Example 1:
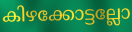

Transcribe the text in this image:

കിഴക്കോട്ടല്ലോ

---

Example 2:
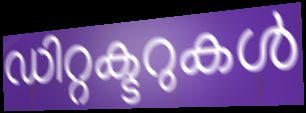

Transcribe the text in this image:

ഡിറ്റക്ടറുകൾ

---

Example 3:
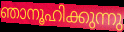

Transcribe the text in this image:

ഞാനൂഹിക്കുന്നു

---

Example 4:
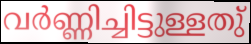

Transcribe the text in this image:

വർണ്ണിച്ചിട്ടുള്ളതു്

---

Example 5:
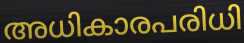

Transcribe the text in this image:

അധികാരപരിധി